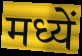
मध्यें